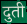
दुती